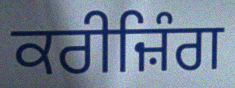
ਕਰੀਜ਼ਿੰਗ